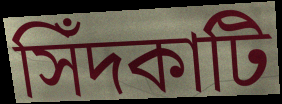
সিঁদকাটি